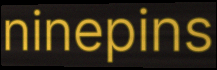
ninepins